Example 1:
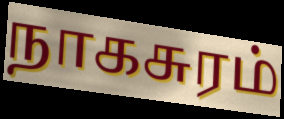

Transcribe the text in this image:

நாகசுரம்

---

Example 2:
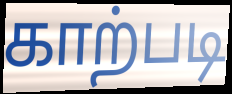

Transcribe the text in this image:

காற்படி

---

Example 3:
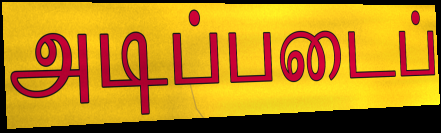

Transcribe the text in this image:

அடிப்படைப்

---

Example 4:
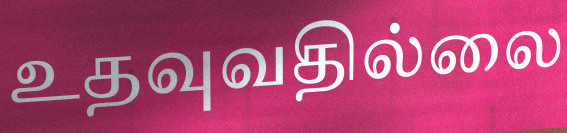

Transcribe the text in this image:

உதவுவதில்லை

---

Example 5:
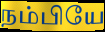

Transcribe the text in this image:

நம்பியே